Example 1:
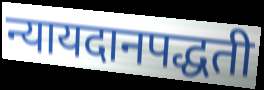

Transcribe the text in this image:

न्यायदानपद्धती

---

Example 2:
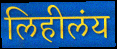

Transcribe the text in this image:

लिहीलंय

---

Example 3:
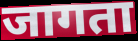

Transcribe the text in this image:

जागता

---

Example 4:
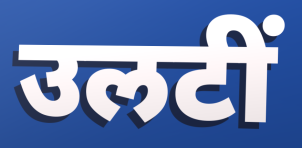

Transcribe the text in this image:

उलटीं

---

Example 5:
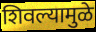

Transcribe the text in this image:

शिवल्यामुळे